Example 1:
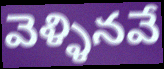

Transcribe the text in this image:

వెళ్ళినవే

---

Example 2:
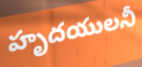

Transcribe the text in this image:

హృదయులనీ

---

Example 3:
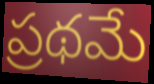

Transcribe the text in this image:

ప్రథమే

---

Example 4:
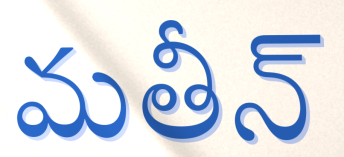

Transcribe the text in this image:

మతీన్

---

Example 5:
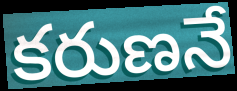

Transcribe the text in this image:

కరుణనే